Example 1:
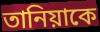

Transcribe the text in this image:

তানিয়াকে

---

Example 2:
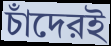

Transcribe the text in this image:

চাঁদেরই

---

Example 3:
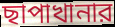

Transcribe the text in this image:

ছাপাখানার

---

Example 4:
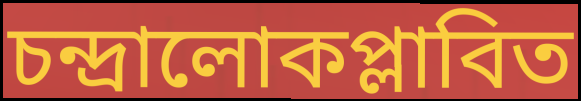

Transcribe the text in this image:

চন্দ্রালোকপ্লাবিত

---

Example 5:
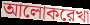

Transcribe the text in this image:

আলোকরেখা